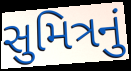
સુમિત્રનું